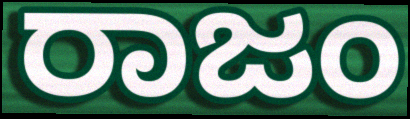
ರಾಜಂ